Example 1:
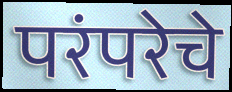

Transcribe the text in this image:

परंपरेचे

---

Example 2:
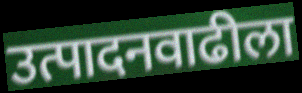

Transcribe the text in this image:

उत्पादनवाढीला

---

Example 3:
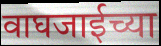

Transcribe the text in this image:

वाघजाईच्या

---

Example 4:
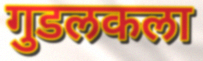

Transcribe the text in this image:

गुडलकला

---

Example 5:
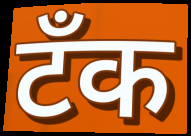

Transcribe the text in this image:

टॅंक